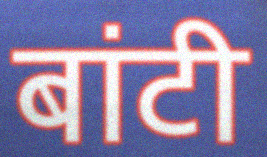
बांटी